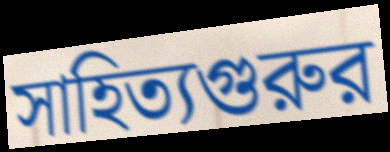
সাহিত্যগুরুর